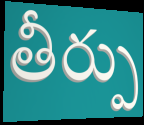
తీర్పు